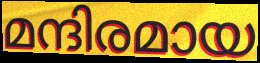
മന്ദിരമായ